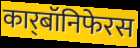
कार्‌बॉनिफेरस